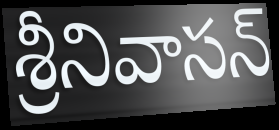
శ్రీనివాసన్